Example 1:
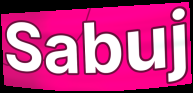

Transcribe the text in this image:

Sabuj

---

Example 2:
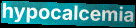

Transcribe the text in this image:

hypocalcemia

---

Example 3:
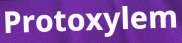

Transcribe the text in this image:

Protoxylem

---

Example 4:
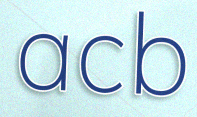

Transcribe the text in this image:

acb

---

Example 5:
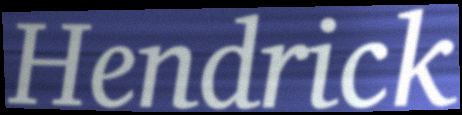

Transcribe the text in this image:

Hendrick